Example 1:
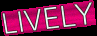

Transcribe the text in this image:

LIVELY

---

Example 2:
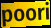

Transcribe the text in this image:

poori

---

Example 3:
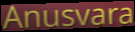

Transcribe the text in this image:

Anusvara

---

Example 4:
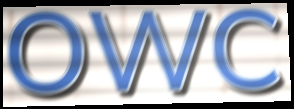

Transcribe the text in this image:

OWC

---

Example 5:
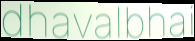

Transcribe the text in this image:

dhavalbhai